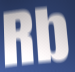
Rb